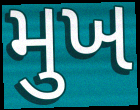
મુખ